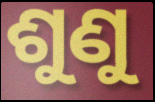
ଶୁଣୁ